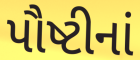
પૌષ્ટીનાં